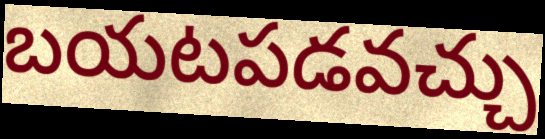
బయటపడవచ్చు